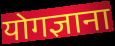
योगज्ञाना